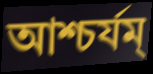
আশ্চর্যম্